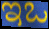
ಇಒ